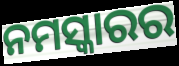
ନମସ୍କାରର